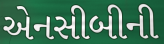
એનસીબીની